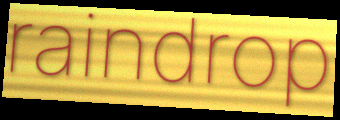
raindrop